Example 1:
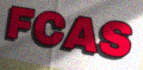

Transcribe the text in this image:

FCAS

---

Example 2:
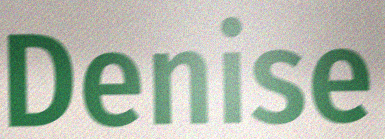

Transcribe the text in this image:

Denise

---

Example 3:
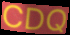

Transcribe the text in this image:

CDQ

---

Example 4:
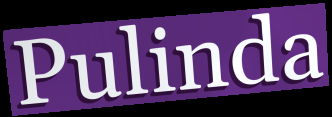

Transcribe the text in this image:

Pulinda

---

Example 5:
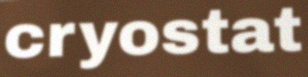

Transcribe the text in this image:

cryostat